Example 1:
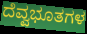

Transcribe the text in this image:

ದೆವ್ವಭೂತಗಳ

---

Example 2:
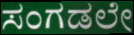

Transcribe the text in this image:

ಸಂಗಡಲೇ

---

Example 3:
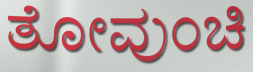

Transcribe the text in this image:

ತೋವುಂಚಿ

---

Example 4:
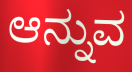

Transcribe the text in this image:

ಆನ್ನುವ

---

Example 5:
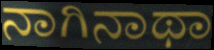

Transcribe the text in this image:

ನಾಗಿನಾಥಾ